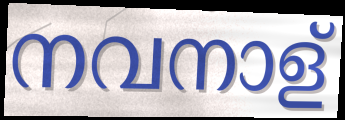
നവനാള്